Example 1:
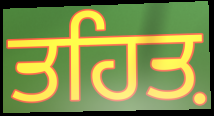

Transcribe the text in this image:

ਤਹਿਤ਼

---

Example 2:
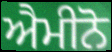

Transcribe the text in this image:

ਐਮੀਨੋ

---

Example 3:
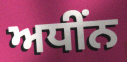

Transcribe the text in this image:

ਅਧੀਂਨ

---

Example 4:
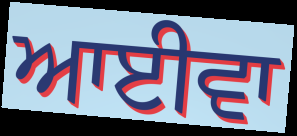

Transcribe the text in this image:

ਆਈਵਾ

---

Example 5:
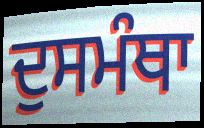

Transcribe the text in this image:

ਦੁਸਮੰਥਾ